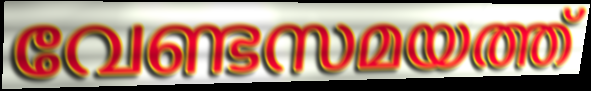
വേണ്ടസമയത്ത്